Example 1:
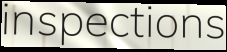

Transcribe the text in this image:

inspections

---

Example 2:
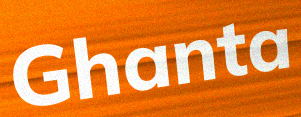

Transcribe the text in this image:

Ghanta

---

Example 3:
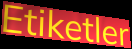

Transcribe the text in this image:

Etiketler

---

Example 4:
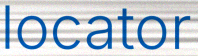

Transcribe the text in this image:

locator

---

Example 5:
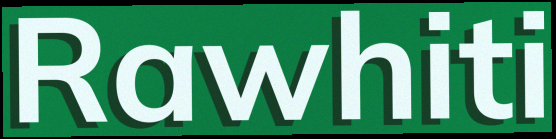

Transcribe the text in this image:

Rawhiti